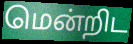
மென்றிட